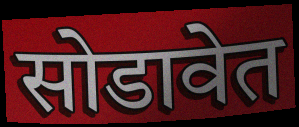
सोडावेत